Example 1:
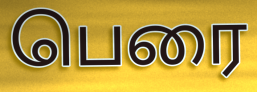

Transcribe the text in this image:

பெரை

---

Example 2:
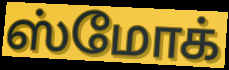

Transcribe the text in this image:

ஸ்மோக்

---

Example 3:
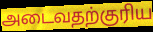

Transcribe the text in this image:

அடைவதற்குரிய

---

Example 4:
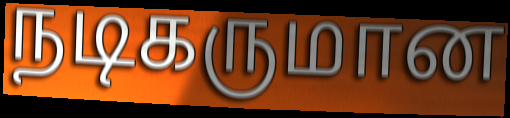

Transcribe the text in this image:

நடிகருமான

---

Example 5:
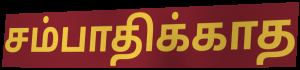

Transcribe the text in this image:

சம்பாதிக்காத